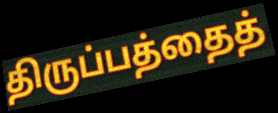
திருப்பத்தைத்